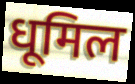
धूमिल